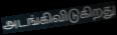
அடங்கிவிடுகிறது